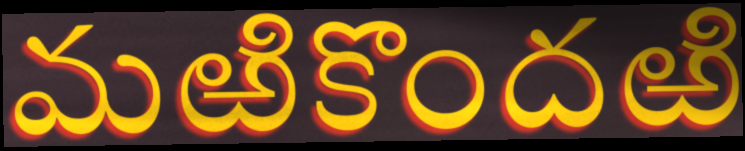
మఱికొందఱి